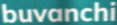
buvanchi